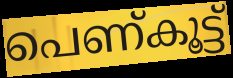
പെണ്കൂട്ട്